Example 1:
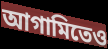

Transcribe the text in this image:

আগামিতেও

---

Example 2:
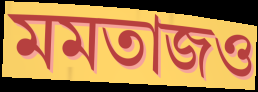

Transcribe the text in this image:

মমতাজও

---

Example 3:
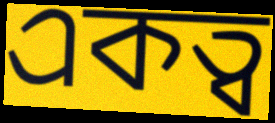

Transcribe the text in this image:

একত্ব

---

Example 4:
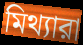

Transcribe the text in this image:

মিথ্যারা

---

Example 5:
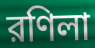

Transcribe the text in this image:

রণিলা